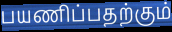
பயணிப்பதற்கும்